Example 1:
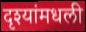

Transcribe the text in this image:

दृश्यांमधली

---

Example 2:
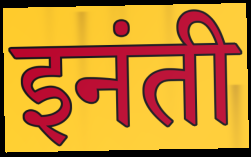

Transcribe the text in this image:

इनंती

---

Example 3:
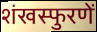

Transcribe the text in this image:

शंखस्फुरणें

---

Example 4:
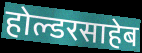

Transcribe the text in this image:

होल्डरसाहेब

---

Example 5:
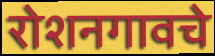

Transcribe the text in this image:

रोशनगावचे